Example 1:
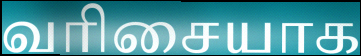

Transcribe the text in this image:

வரிசையாக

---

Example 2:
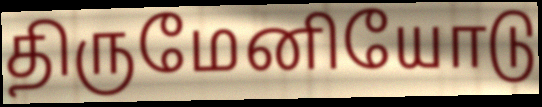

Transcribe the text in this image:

திருமேனியோடு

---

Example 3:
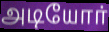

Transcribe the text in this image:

அடியோர்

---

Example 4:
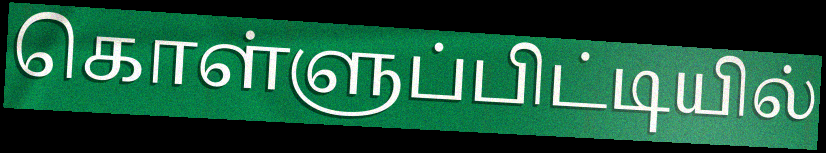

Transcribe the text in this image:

கொள்ளுப்பிட்டியில்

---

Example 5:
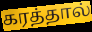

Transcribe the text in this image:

கரத்தால்